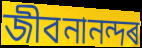
জীবনানন্দৰ